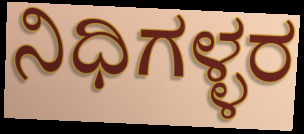
ನಿಧಿಗಳ್ಳರ